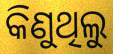
କିଣୁଥିଲୁ